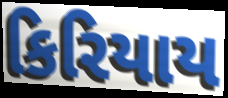
કિરિયાય